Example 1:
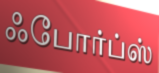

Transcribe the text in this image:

ஃபோர்ப்ஸ்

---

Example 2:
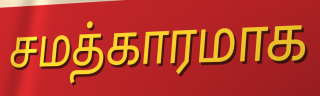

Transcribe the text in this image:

சமத்காரமாக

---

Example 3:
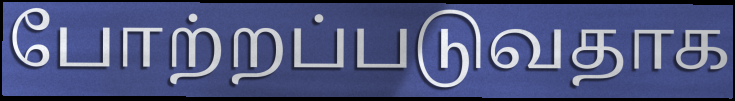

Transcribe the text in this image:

போற்றப்படுவதாக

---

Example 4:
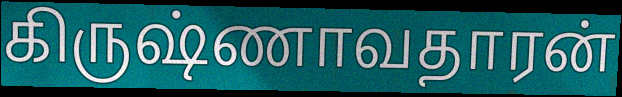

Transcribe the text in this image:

கிருஷ்ணாவதாரன்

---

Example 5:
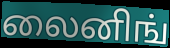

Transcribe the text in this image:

லைனிங்